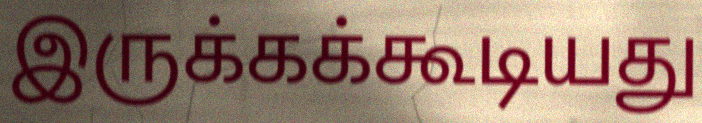
இருக்கக்கூடியது